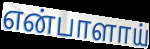
என்பாளாய்